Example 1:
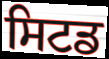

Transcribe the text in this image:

ਸਿਟਡ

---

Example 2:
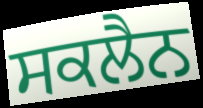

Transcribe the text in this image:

ਸਕਲੈਨ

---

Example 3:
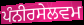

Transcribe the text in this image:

ਪੰਨੀਰਸੇਲਵਮ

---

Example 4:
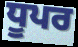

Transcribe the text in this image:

ਧੂਪਰ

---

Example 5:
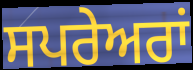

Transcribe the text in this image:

ਸਪਰੇਅਰਾਂ